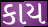
કાય